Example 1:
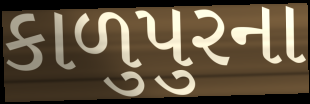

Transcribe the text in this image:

કાળુપુરના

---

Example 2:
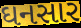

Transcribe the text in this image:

ઘનસાર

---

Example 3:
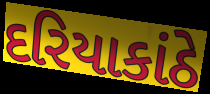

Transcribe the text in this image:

દરિયાકાંઠે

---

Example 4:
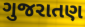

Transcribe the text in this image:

ગુજરાતણ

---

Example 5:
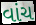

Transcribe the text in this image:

વાંચ